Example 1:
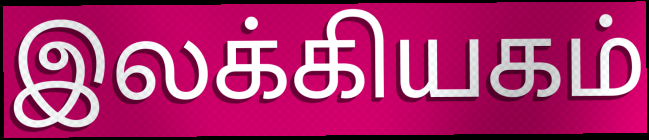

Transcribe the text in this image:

இலக்கியகம்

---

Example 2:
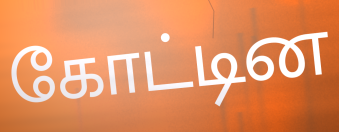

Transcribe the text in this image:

கோட்டின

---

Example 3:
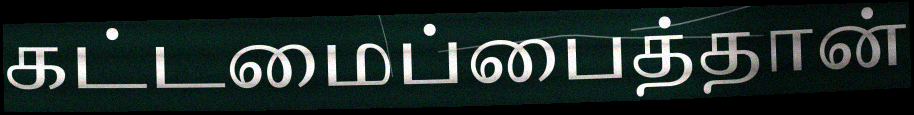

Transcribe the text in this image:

கட்டமைப்பைத்தான்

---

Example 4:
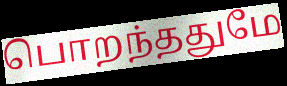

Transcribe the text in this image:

பொறந்ததுமே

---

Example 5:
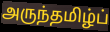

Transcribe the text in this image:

அருந்தமிழ்ப்